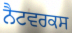
ਨੈਟਵਰਕਸ